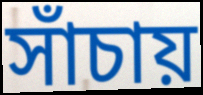
সাঁচায়